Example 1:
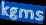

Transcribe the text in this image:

kgms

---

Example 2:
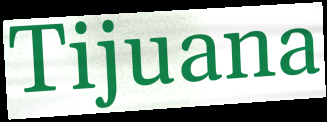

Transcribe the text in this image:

Tijuana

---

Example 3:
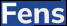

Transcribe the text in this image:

Fens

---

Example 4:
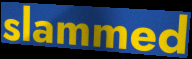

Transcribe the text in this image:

slammed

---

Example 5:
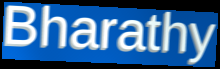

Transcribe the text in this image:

Bharathy